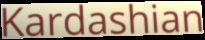
Kardashian